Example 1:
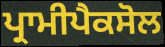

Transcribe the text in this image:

ਪ੍ਰਾਮੀਪੈਕਸੋਲ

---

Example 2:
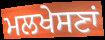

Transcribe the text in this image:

ਮਲਖੇਸਣਾਂ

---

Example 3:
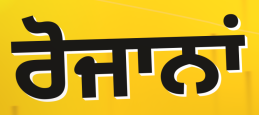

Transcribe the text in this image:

ਰੋਜਾਨਾਂ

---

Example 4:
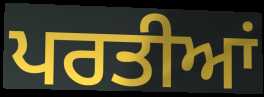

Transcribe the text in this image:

ਪਰਤੀਆਂ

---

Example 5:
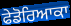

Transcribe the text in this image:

ਫੇਡੋਰਿਆਕਾ